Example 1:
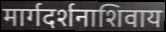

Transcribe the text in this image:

मार्गदर्शनाशिवाय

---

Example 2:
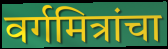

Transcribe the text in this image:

वर्गमित्रांचा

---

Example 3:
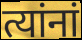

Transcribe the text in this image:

त्यांनां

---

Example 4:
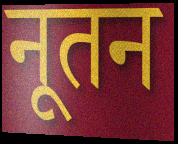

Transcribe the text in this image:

नूतन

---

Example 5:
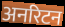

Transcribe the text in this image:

अनरिटन